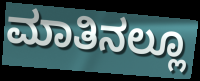
ಮಾತಿನಲ್ಲೂ